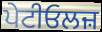
ਪੇਟੀਓਲਜ਼